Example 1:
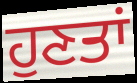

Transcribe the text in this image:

ਹੁਣਤਾਂ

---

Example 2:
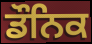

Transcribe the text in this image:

ਡੌਨਿਕ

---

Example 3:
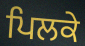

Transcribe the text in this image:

ਪਿਲਕੇ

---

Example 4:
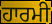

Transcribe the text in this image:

ਹਾਰਮੀ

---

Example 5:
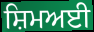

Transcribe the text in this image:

ਸ਼ਿਮਅਈ